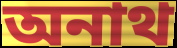
অনাথ